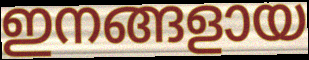
ഇനങ്ങളായ